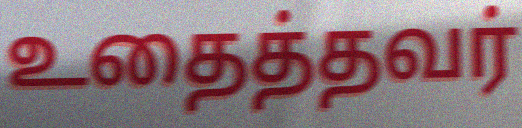
உதைத்தவர்